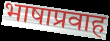
भाषाप्रवाह